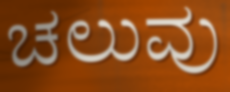
ಚಲುವು